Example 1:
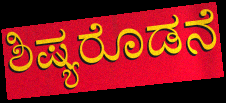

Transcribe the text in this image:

ಶಿಷ್ಯರೊಡನೆ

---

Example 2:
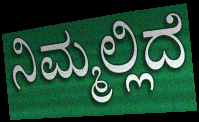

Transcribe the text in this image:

ನಿಮ್ಮಲ್ಲಿದೆ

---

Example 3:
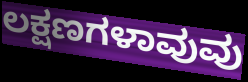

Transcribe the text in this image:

ಲಕ್ಷಣಗಳಾವುವು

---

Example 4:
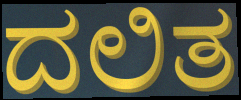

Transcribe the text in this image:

ದಲಿತ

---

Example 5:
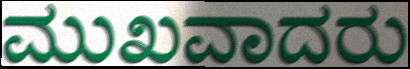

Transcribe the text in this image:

ಮುಖವಾದರು